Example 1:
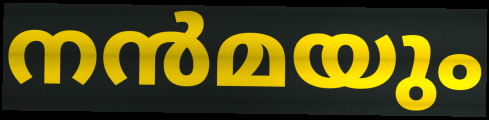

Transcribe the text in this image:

നൻമയും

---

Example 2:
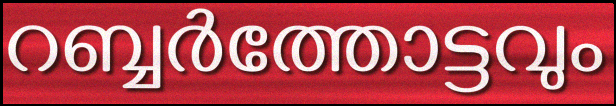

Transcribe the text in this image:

റബ്ബർത്തോട്ടവും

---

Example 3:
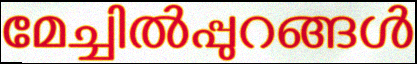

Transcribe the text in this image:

മേച്ചിൽപ്പുറങ്ങൾ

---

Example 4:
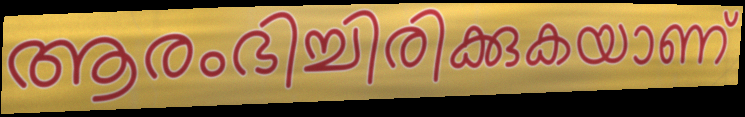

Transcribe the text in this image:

ആരംഭിച്ചിരിക്കുകയാണ്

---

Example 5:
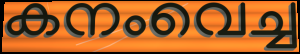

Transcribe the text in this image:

കനംവെച്ച